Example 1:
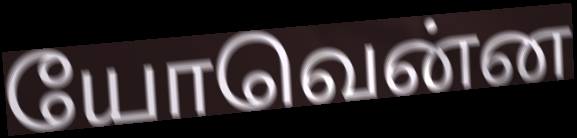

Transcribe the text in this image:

யோவென்ன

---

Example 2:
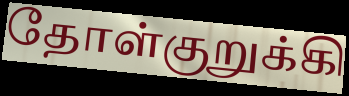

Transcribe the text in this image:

தோள்குறுக்கி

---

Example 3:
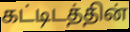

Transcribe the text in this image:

கட்டிடத்தின்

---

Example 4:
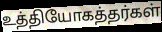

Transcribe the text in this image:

உத்தியோகத்தர்கள்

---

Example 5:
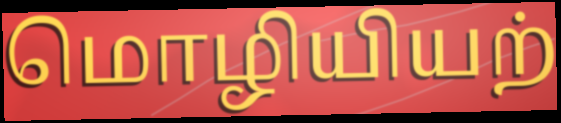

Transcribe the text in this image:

மொழியியற்